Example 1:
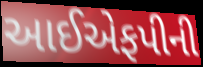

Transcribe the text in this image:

આઈએફપીની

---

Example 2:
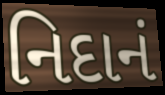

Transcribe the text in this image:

નિદાનં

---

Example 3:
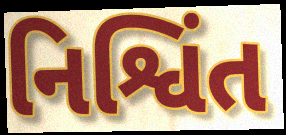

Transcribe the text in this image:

નિશ્વિંત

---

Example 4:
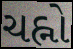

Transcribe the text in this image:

ચહ્નો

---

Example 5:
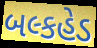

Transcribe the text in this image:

બલ્કહેડ